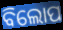
ବିଲୋପ